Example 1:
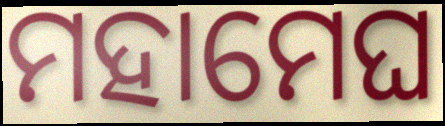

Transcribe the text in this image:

ମହାମେଘ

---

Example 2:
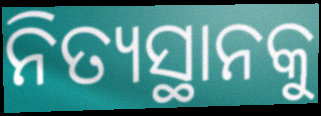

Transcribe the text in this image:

ନିତ୍ୟସ୍ଥାନକୁ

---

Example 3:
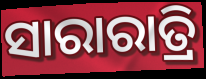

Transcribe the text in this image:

ସାରାରାତ୍ରି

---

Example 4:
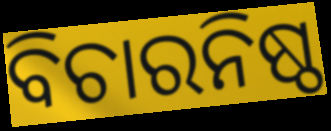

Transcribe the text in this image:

ବିଚାରନିଷ୍ଠ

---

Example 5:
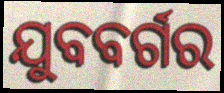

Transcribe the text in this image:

ଯୁବବର୍ଗର